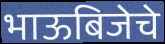
भाऊबिजेचे